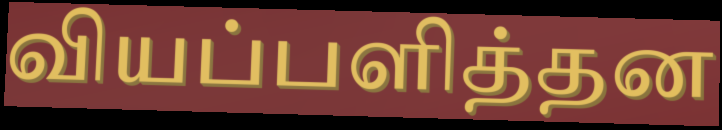
வியப்பளித்தன